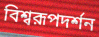
বিশ্বরূপদর্শন